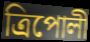
ত্রিপোলী